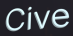
Cive